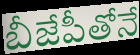
బీజేపీతోనే